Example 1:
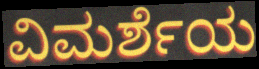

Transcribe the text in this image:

ವಿಮರ್ಶೆಯ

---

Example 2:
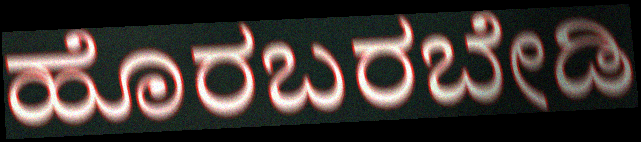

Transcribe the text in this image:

ಹೊರಬರಬೇಡಿ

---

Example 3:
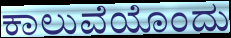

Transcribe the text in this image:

ಕಾಲುವೆಯೊಂದು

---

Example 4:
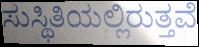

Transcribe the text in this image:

ಸುಸ್ಥಿತಿಯಲ್ಲಿರುತ್ತವೆ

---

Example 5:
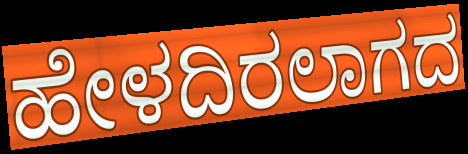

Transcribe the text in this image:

ಹೇಳದಿರಲಾಗದ